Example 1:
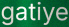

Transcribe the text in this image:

gatiye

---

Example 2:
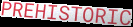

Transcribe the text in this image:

PREHISTORIC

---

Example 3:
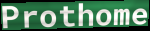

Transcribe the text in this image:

Prothome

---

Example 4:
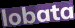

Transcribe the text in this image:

lobata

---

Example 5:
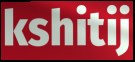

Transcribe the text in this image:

kshitij